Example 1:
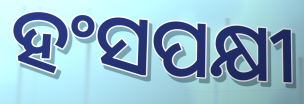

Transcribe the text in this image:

ହଂସପକ୍ଷୀ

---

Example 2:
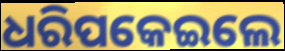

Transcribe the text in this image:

ଧରିପକେଇଲେ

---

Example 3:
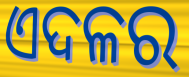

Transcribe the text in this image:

ଏଦଳର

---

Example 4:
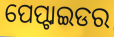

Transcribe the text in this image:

ପେପ୍ଟାଇଡର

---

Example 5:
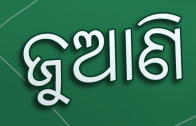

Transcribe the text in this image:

ଜୁଆଣି